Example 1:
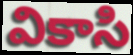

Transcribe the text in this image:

వికాసి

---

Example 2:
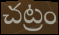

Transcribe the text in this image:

చట్రం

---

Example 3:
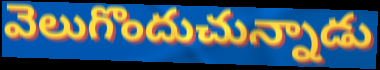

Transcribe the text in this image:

వెలుగొందుచున్నాడు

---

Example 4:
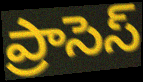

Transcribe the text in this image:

ప్రాసెస్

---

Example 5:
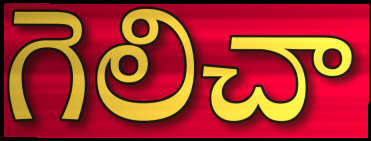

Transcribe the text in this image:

గెలిచా